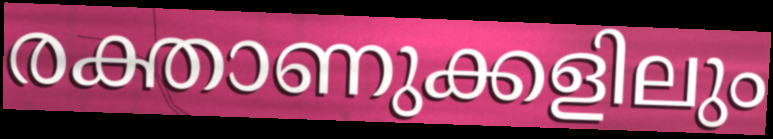
രക്താണുക്കളിലും